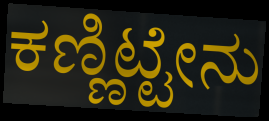
ಕಣ್ಣಿಟ್ಟೇನು